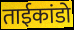
ताईकांडो